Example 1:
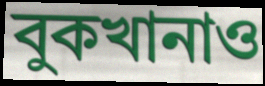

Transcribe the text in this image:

বুকখানাও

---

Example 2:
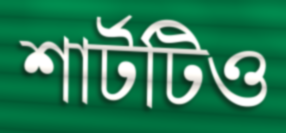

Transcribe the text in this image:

শার্টটিও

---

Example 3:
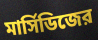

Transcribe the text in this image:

মার্সিডিজের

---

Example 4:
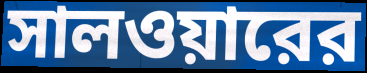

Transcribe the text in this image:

সালওয়ারের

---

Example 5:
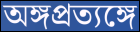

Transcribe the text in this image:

অঙ্গপ্রত্যঙ্গে